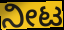
ನೀಟ